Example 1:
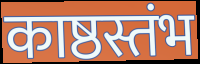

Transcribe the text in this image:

काष्ठस्तंभ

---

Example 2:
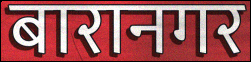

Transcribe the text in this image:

बारानगर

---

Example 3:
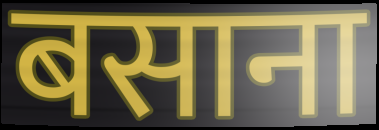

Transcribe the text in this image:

बसाना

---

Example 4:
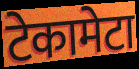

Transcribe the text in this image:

टेकामेटा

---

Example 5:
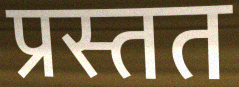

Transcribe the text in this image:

प्रस्तत